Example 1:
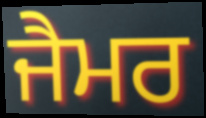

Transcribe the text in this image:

ਜੈਮਰ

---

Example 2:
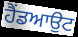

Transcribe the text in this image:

ਹੈਂਡਆਉਟ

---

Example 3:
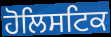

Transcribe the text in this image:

ਹੋਲਿਸਟਿਕ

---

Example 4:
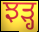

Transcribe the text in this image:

ਝੜ੍ਹ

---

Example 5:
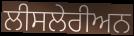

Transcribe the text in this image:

ਲੀਸਲੇਰੀਅਨ